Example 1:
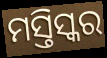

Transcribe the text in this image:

ମସ୍ତିସ୍କର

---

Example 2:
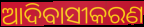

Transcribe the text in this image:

ଆଦିବାସୀକରଣ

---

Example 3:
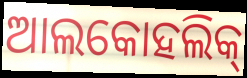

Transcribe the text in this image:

ଆଲକୋହଲିକ୍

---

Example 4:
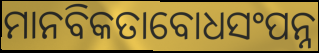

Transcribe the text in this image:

ମାନବିକତାବୋଧସଂପନ୍ନ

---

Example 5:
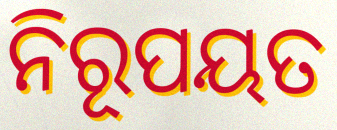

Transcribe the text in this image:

ନିରୂପୟତ